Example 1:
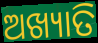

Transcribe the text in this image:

ଅଖ୍ୟାତି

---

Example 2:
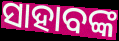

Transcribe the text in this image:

ସାହାବଙ୍କ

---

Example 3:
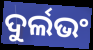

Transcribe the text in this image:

ଦୁର୍ଲଭଂ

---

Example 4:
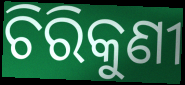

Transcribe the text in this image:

ଚିରିକୁଣୀ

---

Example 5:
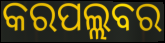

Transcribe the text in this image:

କରପଲ୍ଲବର